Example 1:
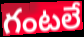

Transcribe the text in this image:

గంటలే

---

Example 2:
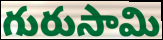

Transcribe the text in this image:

గురుసామి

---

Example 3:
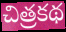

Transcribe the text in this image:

చిత్రకథ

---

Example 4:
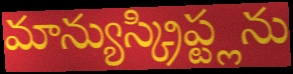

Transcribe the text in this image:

మాన్యుస్క్రిప్ట్లను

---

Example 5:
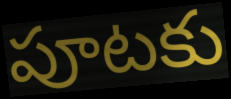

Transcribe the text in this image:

పూటకు